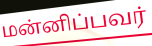
மன்னிப்பவர்